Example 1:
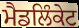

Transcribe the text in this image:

ਮੈਡਲਿੰਕੇਟ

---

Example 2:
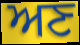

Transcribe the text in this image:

ਅਣ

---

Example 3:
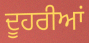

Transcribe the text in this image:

ਦੂਹਰੀਆਂ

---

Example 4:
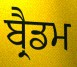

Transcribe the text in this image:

ਬ੍ਰੈਡਮ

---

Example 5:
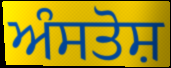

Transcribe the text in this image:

ਅੰਸਤੋਸ਼